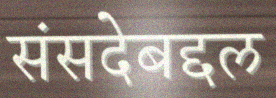
संसदेबद्दल